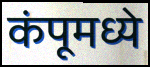
कंपूमध्ये